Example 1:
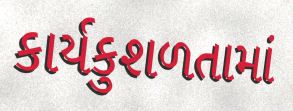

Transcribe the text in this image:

કાર્યકુશળતામાં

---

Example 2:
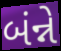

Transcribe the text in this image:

બંન્ને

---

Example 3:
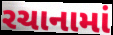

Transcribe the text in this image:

રચાનામાં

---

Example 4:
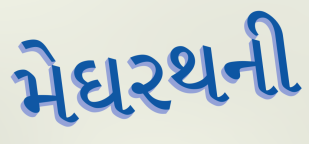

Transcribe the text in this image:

મેઘરથની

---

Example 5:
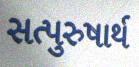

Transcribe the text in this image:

સત્પુરુષાર્થ